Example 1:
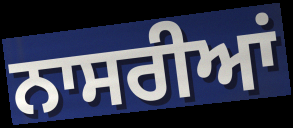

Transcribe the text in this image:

ਨਾਸਰੀਆਂ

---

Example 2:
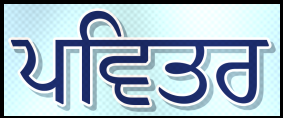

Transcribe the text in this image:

ਪਵਿਤਰ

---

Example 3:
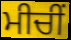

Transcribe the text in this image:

ਮੀਚੀਂ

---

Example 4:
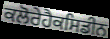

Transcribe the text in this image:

ਕਲੋਰੇਹੈਕਸਿਡੀਨ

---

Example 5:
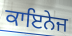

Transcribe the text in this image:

ਕਾਇਨੇਜ